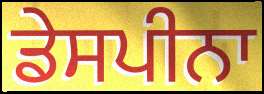
ਡੇਸਪੀਨਾ